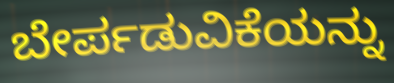
ಬೇರ್ಪಡುವಿಕೆಯನ್ನು